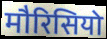
मौरिसियो